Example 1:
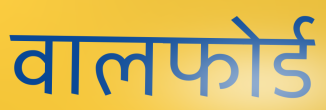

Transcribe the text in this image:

वालफोर्ड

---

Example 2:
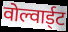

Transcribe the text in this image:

वोल्वार्ड्ट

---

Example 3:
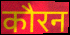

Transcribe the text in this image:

कौरन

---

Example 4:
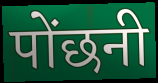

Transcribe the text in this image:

पोंछनी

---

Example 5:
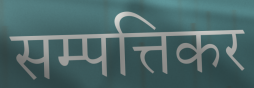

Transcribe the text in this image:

सम्पत्तिकर